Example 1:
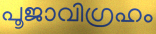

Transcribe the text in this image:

പൂജാവിഗ്രഹം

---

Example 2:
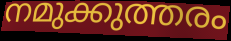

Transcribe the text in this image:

നമുക്കുത്തരം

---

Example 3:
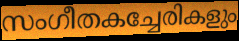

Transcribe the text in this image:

സംഗീതകച്ചേരികളും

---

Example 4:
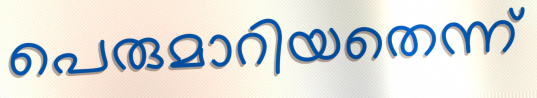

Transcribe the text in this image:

പെരുമാറിയതെന്ന്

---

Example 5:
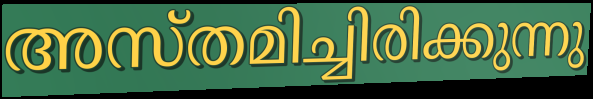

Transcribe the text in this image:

അസ്തമിച്ചിരിക്കുന്നു